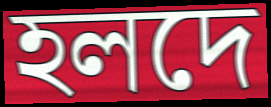
হলদে